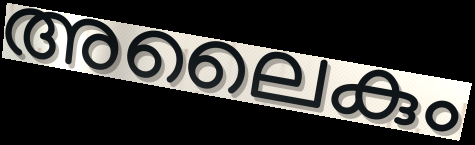
അലൈകും